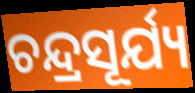
ଚନ୍ଦ୍ରସୂର୍ଯ୍ୟ